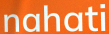
nahati